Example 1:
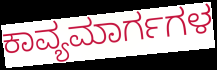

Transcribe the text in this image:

ಕಾವ್ಯಮಾರ್ಗಗಳ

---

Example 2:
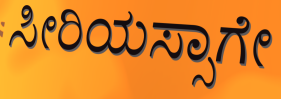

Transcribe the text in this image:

ಸೀರಿಯಸ್ಸಾಗೇ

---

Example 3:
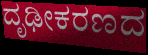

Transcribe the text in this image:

ದೃಢೀಕರಣದ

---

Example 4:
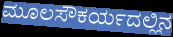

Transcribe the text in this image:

ಮೂಲಸೌಕರ್ಯದಲ್ಲಿನ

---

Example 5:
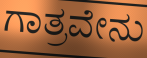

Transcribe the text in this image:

ಗಾತ್ರವೇನು